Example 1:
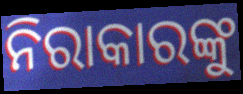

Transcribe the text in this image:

ନିରାକାରଙ୍କୁ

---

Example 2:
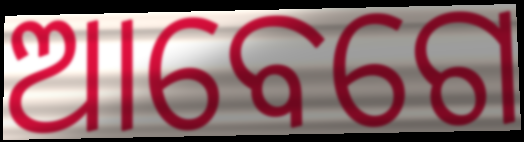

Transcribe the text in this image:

ଆବେଗେ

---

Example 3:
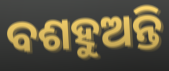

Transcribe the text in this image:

ବଶହୁଅନ୍ତି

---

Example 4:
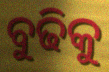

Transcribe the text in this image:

ବୁଢିକୁ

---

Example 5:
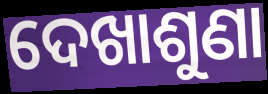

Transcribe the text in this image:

ଦେଖାଶୁଣା